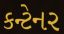
કન્ટેનર